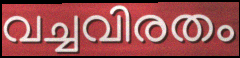
വച്ചവിരതം